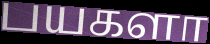
பயகளா